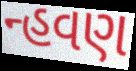
ન્હવણ